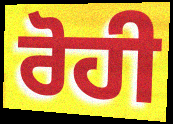
ਰੋਹੀ